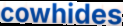
cowhides